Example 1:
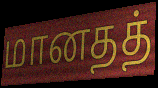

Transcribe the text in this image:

மானதத்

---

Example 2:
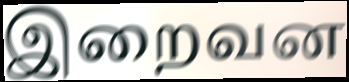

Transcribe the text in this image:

இறைவன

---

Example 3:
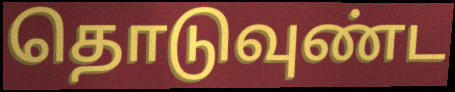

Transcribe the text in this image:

தொடுவுண்ட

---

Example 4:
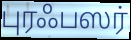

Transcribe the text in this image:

புரஃபஸர்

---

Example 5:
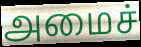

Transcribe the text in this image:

அமைச்